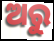
ଅରୁ